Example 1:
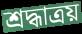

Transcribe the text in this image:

শ্রদ্ধাত্রয়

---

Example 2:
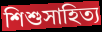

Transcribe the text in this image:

শিশুসাহিত্য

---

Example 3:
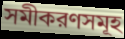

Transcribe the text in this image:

সমীকরণসমূহ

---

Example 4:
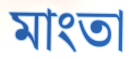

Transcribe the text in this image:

মাংতা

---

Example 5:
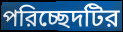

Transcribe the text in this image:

পরিচ্ছেদটির